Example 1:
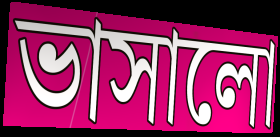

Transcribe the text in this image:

ভাসালো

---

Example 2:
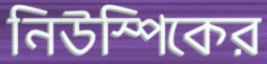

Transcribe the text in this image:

নিউস্পিকের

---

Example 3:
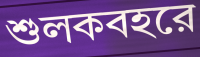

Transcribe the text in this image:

শুলকবহরে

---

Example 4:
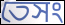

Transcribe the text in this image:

তেসং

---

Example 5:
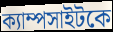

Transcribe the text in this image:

ক্যাম্পসাইটকে